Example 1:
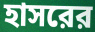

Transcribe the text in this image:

হাসরের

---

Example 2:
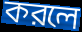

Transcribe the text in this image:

করলে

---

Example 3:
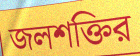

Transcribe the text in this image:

জলশক্তির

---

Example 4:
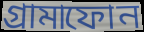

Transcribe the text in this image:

গ্রামাফোন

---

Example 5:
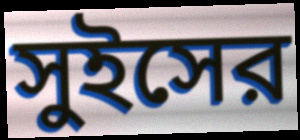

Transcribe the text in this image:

সুইসের